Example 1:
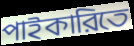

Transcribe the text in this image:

পাইকারিতে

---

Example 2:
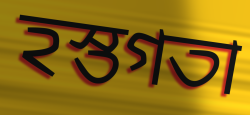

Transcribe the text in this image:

হস্তগতা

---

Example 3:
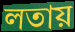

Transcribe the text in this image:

লতায়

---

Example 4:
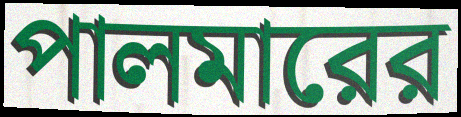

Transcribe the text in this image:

পালমারের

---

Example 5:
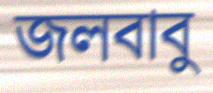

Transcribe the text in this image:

জলবাবু